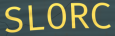
SLORC